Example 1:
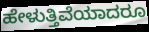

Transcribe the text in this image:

ಹೇಳುತ್ತಿವೆಯಾದರೂ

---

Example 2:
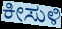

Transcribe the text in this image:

ಕೀಸುಳಿ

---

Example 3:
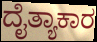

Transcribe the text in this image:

ದೈತ್ಯಾಕಾರ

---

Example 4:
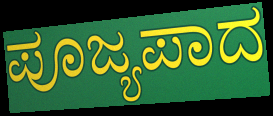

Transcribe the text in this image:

ಪೂಜ್ಯಪಾದ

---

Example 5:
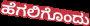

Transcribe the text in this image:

ಹೆಗಲಿಗೊಂದು